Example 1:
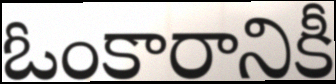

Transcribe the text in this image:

ఓంకారానికీ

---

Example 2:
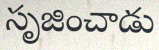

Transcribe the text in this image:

సృజించాడు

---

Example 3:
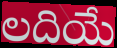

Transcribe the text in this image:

లదియే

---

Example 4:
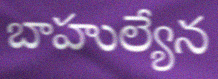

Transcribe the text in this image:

బాహుల్యేన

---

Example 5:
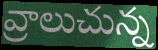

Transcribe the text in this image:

వ్రాలుచున్న